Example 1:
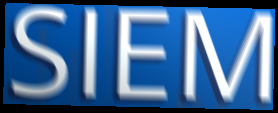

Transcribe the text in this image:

SIEM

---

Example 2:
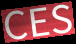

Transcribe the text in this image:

CES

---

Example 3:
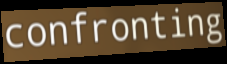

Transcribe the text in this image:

confronting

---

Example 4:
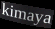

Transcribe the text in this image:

kimaya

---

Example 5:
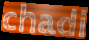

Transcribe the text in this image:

chadi